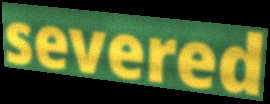
severed